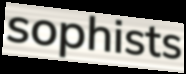
sophists